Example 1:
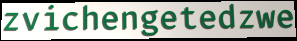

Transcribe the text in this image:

zvichengetedzwe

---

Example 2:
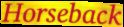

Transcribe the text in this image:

Horseback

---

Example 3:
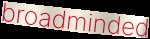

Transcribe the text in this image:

broadminded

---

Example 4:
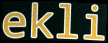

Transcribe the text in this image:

ekli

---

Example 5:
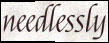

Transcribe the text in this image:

needlessly